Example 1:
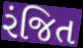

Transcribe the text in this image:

રંજિત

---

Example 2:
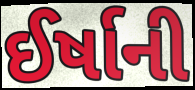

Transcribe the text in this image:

ઈર્ષાની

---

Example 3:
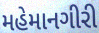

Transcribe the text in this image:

મહેમાનગીરી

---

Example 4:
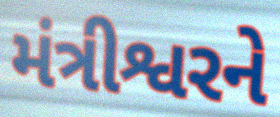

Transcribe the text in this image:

મંત્રીશ્વરને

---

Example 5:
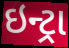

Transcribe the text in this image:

ઇન્ટ્રા